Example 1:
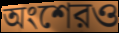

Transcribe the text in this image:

অংশেরও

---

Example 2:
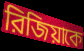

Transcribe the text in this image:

রিজিয়াকে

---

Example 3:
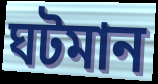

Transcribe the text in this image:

ঘটমান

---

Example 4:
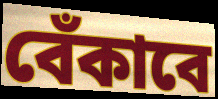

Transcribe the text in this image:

বেঁকাবে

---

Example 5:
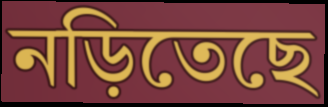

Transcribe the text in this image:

নড়িতেছে